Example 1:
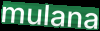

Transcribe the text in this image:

mulana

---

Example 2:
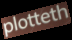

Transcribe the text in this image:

plotteth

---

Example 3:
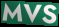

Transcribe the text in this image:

MVS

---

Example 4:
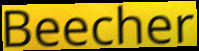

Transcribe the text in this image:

Beecher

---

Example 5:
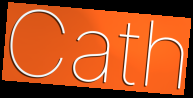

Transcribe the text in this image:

Cath